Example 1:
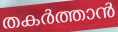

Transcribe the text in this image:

തകർത്താൻ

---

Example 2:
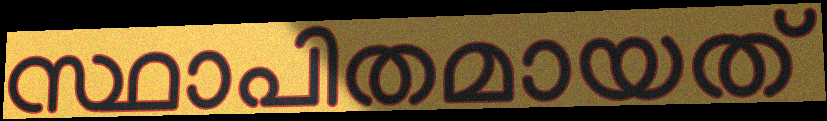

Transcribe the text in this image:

സ്ഥാപിതമായത്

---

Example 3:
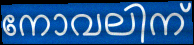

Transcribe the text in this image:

നോവലിന്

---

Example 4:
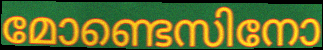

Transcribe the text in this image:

മോണ്ടെസിനോ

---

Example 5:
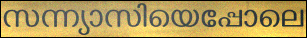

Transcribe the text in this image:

സന്ന്യാസിയെപ്പോലെ